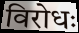
विरोधः